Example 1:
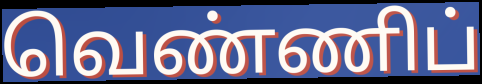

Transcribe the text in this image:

வெண்ணிப்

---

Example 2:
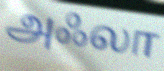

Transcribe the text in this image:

அஃலா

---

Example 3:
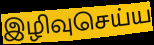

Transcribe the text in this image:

இழிவுசெய்ய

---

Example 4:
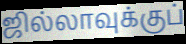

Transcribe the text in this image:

ஜில்லாவுக்குப்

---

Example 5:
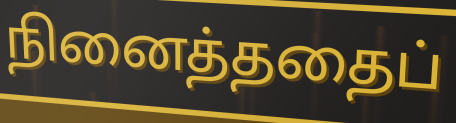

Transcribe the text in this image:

நினைத்ததைப்